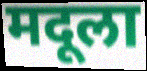
मदूला